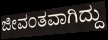
ಜೀವಂತವಾಗಿದ್ದು